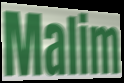
Malim